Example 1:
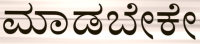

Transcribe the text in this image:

ಮಾಡಬೇಕೇ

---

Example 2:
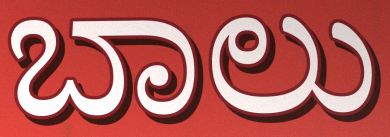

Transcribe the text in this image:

ಬಾಲು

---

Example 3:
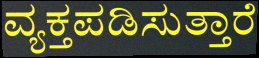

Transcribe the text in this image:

ವ್ಯಕ್ತಪಡಿಸುತ್ತಾರೆ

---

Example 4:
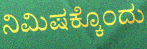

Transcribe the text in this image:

ನಿಮಿಷಕ್ಕೊಂದು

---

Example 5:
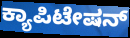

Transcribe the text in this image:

ಕ್ಯಾಪಿಟೇಷನ್